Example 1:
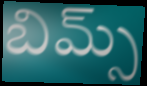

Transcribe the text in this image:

బిమ్స్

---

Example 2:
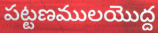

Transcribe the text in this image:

పట్టణములయొద్ద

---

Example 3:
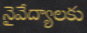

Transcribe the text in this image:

నైవేద్యాలకు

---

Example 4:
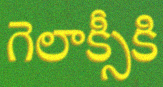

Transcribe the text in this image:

గెలాక్సీకి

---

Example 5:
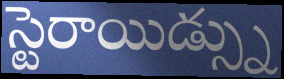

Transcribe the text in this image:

స్టెరాయిడ్స్ను